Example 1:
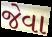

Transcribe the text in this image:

જેવા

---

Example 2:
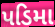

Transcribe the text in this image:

પડિમા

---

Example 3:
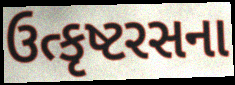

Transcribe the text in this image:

ઉત્કૃષ્ટરસના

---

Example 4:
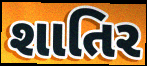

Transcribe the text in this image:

શાતિર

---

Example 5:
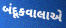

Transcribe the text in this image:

બંદૂકવાલાએ